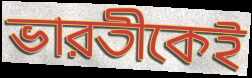
ভারতীকেই